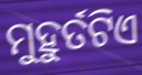
ମୁହୁର୍ତଟିଏ